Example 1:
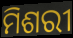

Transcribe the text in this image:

ମିଶରୀ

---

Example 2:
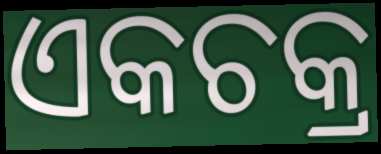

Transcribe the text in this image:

ଏକଚକ୍ର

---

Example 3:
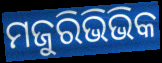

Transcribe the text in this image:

ମଜୁରିଭିଭିକ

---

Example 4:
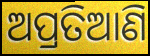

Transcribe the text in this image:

ଅପ୍ରତିଆଣି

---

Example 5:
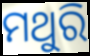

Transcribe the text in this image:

ମଥୁରି